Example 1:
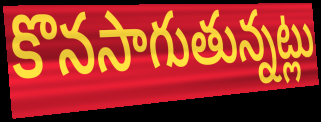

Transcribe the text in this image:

కొనసాగుతున్నట్లు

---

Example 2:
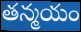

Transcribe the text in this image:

తన్మయం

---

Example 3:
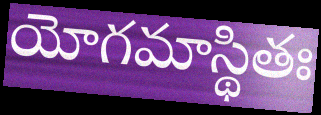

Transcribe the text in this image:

యోగమాస్థితః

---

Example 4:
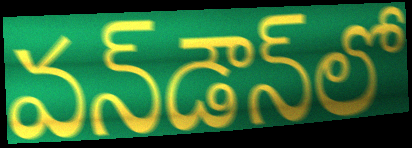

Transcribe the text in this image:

వన్‌డౌన్‌లో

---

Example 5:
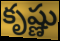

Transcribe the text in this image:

కృష్ణు